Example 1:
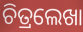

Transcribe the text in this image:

ଚିତ୍ରଲେଖା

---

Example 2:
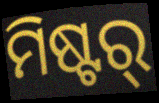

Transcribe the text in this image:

ମିଷ୍ଟର୍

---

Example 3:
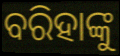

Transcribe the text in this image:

ବରିହାଙ୍କୁ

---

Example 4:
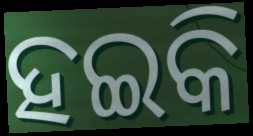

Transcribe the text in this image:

ହଇକି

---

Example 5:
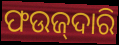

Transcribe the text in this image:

ଫଉଜ୍‌ଦାରି